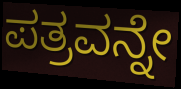
ಪತ್ರವನ್ನೇ